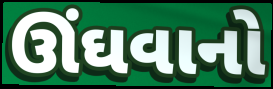
ઊંઘવાનો